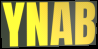
YNAB